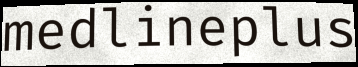
medlineplus